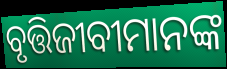
ବୃତ୍ତିଜୀବୀମାନଙ୍କ